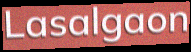
Lasalgaon